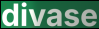
divase